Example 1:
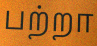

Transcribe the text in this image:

பற்றா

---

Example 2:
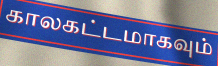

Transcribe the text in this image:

காலகட்டமாகவும்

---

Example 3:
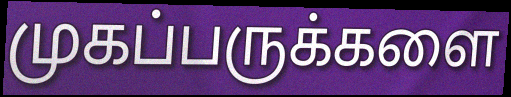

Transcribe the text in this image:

முகப்பருக்களை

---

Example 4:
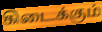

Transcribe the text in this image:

கிடைக்கும்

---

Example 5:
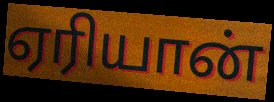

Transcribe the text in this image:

ஏரியான்